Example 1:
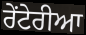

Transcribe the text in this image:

ਰੇਂਟੇਰੀਆ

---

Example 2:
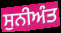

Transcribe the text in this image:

ਸੁਨੀਅੰਤ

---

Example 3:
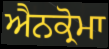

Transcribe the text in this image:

ਐਨਕ੍ਰੋਮਾ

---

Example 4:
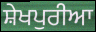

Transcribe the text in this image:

ਸ਼ੇਖਪੁਰੀਆ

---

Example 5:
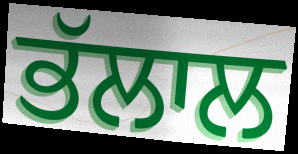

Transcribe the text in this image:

ਭੱਲਾਲ